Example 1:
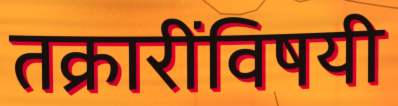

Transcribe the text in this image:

तक्रारींविषयी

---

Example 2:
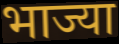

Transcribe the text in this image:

भाज्या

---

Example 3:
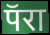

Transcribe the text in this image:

पॅरा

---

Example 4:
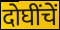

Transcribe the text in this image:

दोघींचें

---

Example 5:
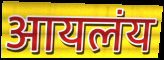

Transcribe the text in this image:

आयलंय